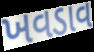
ખવડાવ